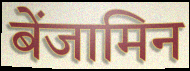
बेंजामिन